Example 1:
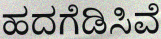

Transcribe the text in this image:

ಹದಗೆಡಿಸಿವೆ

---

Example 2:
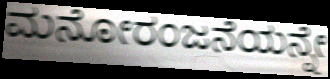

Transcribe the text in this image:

ಮನೋರಂಜನೆಯನ್ನೇ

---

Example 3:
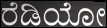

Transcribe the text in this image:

ರೆಡಿಯೋ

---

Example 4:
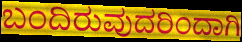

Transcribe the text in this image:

ಬಂದಿರುವುದರಿಂದಾಗಿ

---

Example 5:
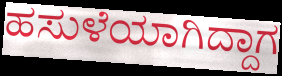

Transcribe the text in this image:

ಹಸುಳೆಯಾಗಿದ್ದಾಗ